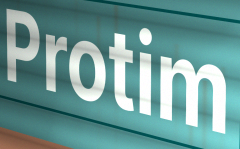
Protim